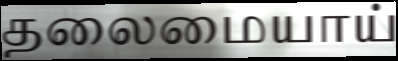
தலைமையாய்